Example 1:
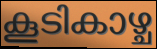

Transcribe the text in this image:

കൂടികാഴ്ച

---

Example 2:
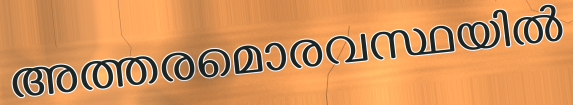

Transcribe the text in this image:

അത്തരമൊരവസ്ഥയിൽ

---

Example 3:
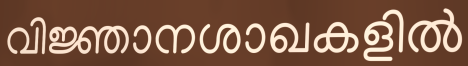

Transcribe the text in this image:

വിജ്ഞാനശാഖകളിൽ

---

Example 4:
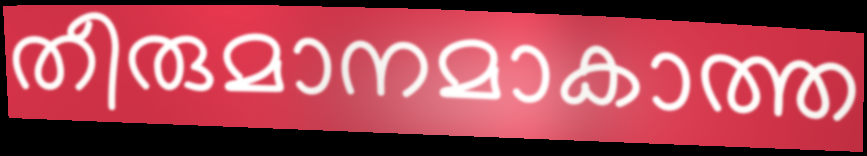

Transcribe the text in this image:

തീരുമാനമാകാത്ത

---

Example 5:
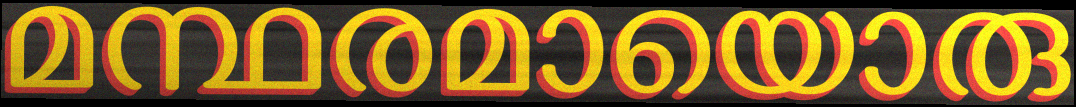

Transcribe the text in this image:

മന്ഥരമായൊരു